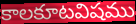
కాలకూటవిషము